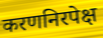
करणनिरपेक्ष